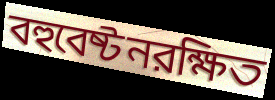
বহুবেষ্টনরক্ষিত